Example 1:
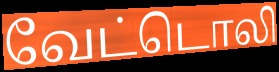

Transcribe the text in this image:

வேட்டொலி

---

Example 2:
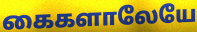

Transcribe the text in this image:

கைகளாலேயே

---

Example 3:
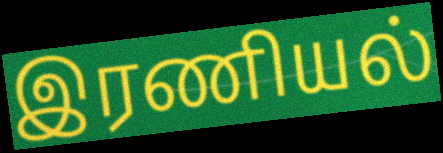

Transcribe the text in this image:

இரணியல்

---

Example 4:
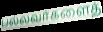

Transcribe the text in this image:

பல்லவர்களைத்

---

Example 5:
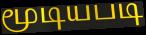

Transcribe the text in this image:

மூடியபடி